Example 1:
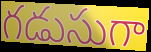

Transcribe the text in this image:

గడుసుగా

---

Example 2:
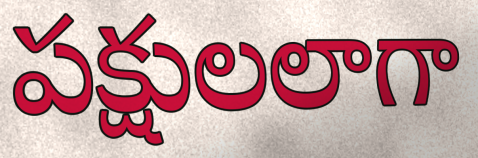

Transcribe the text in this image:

పక్షులలాగా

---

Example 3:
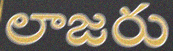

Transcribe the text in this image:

లాజరు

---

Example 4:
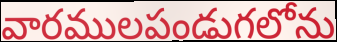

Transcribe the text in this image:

వారములపండుగలోను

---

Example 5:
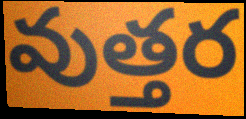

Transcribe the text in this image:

వుత్తర